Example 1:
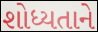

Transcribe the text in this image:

શોધ્યતાને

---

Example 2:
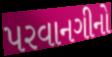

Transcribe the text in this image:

પરવાનગીનો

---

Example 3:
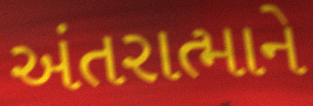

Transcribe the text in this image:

અંતરાત્માને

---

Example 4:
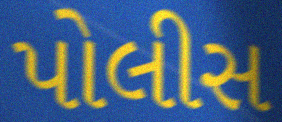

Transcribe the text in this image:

પોલીસ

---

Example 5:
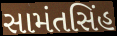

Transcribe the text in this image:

સામંતસિંહ